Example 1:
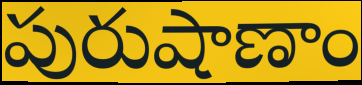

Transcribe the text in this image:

పురుషాణాం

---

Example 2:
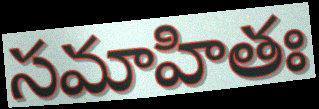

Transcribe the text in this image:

సమాహితః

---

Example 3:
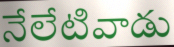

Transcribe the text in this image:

నేలేటివాడు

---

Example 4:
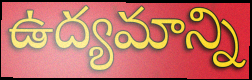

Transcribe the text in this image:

ఉద్యమాన్ని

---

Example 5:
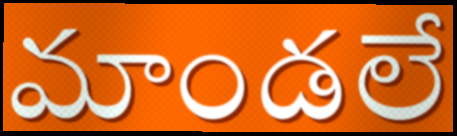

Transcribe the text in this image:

మాండలే